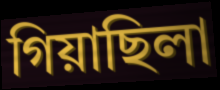
গিয়াছিলা